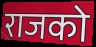
राजको